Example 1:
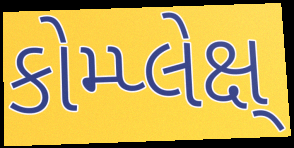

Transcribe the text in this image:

કોમ્પ્લેક્ષ્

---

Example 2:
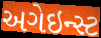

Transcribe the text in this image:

અગેઇન્સ્ટ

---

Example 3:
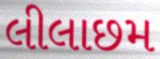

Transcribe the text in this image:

લીલાછમ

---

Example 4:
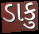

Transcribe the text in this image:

ડાકુ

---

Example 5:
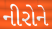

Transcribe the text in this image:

નીરોને